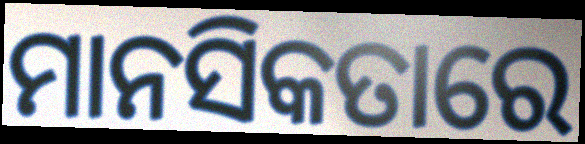
ମାନସିକତାରେ